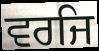
ਵਰਜਿ